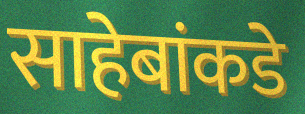
साहेबांकडे